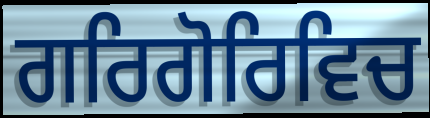
ਗਰਿਗੋਰਿਵਿਚ